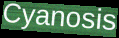
Cyanosis